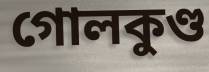
গোলকুণ্ড